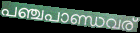
പഞ്ചപാണ്ഡവര്